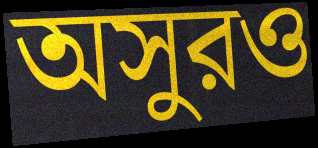
অসুরও